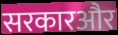
सरकारऔर